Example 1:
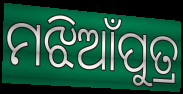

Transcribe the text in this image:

ମଝିଆଁପୁତ୍ର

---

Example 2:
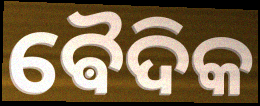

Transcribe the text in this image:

ଵୈଦିକ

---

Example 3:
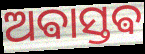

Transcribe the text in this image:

ଅଵାସ୍ତଵ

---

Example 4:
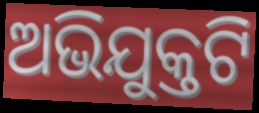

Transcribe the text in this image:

ଅଭିଯୁକ୍ତଟି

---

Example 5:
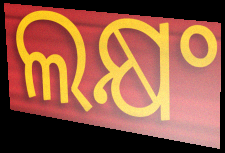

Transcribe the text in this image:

ଲକ୍ଷଂ